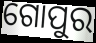
ଗୋପୁର